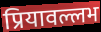
प्रियावल्लभ